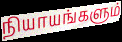
நியாயங்களும்